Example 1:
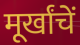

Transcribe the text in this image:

मूर्खांचें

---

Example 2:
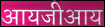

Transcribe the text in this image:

आयजीआय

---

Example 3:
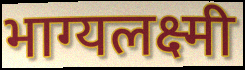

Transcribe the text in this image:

भाग्यलक्ष्मी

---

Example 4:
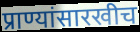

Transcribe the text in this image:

प्राण्यांसारखीच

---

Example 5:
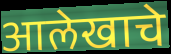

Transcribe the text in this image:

आलेखाचे